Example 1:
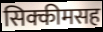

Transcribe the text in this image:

सिक्कीमसह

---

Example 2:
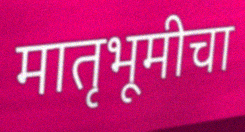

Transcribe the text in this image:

मातृभूमीचा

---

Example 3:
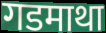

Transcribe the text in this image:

गडमाथा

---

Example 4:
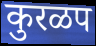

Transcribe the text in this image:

कुरळप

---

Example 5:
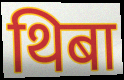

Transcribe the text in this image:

थिबा